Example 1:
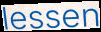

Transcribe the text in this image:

lessen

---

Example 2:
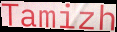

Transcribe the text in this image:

Tamizh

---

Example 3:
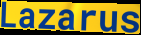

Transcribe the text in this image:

Lazarus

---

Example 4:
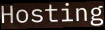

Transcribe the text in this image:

Hosting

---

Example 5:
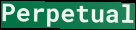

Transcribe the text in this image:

Perpetual